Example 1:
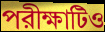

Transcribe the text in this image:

পরীক্ষাটিও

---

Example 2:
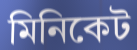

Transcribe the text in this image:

মিনিকেট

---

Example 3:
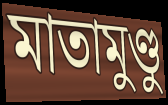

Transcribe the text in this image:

মাতামুণ্ডু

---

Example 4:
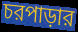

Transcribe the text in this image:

চরপাড়ার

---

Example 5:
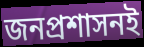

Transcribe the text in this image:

জনপ্রশাসনই